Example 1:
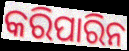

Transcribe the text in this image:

କରିପାରିନ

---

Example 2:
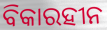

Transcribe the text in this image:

ବିକାରହୀନ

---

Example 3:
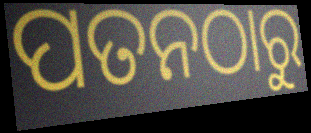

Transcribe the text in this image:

ପତନଠାରୁ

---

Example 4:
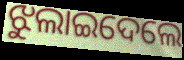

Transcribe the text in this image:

ଝୁଲାଇଦେଲେ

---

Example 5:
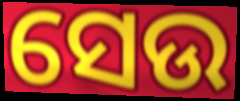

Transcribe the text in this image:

ସେଉ